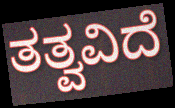
ತತ್ವವಿದೆ